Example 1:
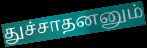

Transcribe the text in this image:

துச்சாதனனும்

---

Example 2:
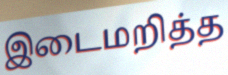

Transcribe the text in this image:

இடைமறித்த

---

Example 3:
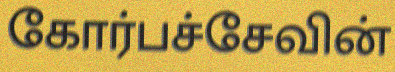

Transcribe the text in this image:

கோர்பச்சேவின்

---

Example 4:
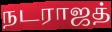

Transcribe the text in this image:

நடராஜத்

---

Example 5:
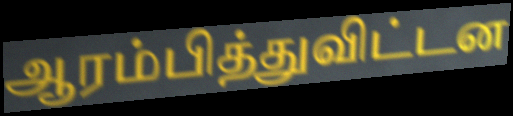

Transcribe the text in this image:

ஆரம்பித்துவிட்டன